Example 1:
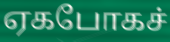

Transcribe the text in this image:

ஏகபோகச்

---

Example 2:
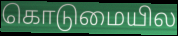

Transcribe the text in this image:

கொடுமையில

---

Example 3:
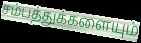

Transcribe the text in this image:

சம்பத்துக்களையும்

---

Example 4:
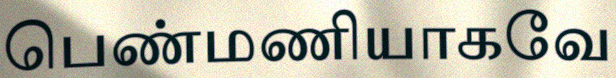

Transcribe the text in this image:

பெண்மணியாகவே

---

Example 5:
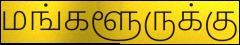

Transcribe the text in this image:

மங்களூருக்கு